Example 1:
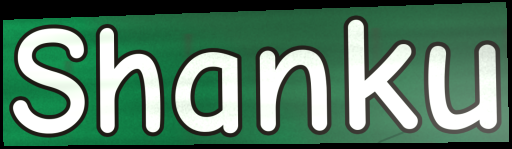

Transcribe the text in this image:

Shanku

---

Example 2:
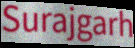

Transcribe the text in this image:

Surajgarh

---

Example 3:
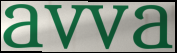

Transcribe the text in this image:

avva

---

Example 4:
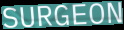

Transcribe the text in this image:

SURGEON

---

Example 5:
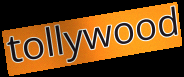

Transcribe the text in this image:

tollywood